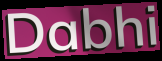
Dabhi